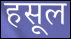
हसूल